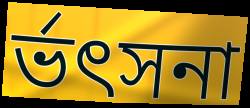
র্ভৎসনা